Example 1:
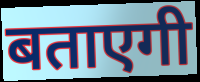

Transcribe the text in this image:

बताएगी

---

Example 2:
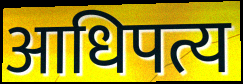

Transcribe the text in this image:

आधिपत्य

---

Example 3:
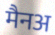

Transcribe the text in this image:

मैनअ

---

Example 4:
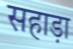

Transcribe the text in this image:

सहाड़ा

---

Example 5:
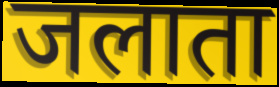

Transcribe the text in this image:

जलाता